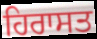
ਹਿਰਾਸਤ